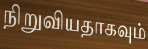
நிறுவியதாகவும்